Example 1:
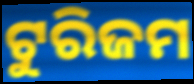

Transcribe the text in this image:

ଟୁରିଜମ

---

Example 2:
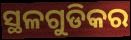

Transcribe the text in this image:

ସ୍ଥଳଗୁଡିକର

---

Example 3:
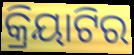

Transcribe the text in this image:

କ୍ରିୟାଟିର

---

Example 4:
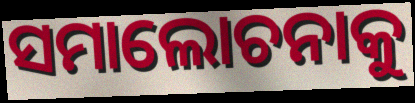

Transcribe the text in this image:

ସମାଲୋଚନାକୁ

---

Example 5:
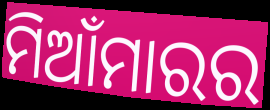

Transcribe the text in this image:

ମିଆଁମାରର